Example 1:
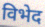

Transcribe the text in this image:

विभेद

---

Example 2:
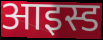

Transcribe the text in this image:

आइस्ड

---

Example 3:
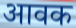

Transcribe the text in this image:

आवक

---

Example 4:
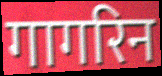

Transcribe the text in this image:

गागरिन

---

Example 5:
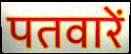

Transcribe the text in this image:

पतवारें